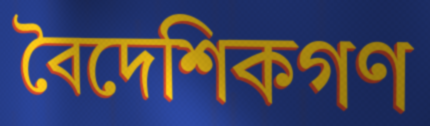
বৈদেশিকগণ